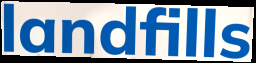
landfills